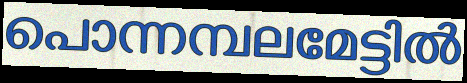
പൊന്നമ്പലമേട്ടിൽ